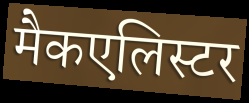
मैकएलिस्टर